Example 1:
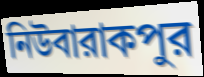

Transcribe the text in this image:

নিউবারাকপুর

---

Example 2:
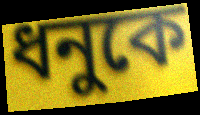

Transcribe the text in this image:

ধনুকে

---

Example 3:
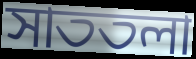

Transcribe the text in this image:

সাততলা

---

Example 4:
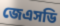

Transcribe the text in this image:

জেএসডি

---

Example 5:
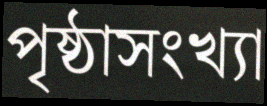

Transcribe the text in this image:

পৃষ্ঠাসংখ্যা